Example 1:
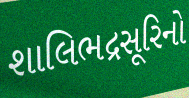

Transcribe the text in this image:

શાલિભદ્રસૂરિનો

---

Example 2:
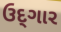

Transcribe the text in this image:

ઉદ્‌ગાર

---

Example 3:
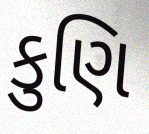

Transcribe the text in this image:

કુણિ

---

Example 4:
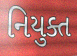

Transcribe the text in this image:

નિયુક્ત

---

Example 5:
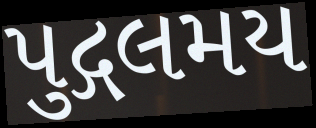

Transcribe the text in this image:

પુદ્ગલમય